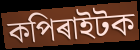
কপিৰাইটক